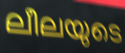
ലീലയുടെ